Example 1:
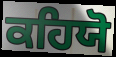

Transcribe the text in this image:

ਕਹਿਯੋ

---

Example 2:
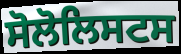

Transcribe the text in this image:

ਸੋਲੋਲਿਸਟਸ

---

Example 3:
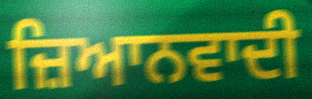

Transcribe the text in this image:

ਜ਼ਿਆਨਵਾਦੀ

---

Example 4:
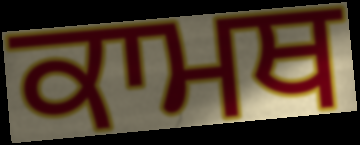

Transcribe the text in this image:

ਕਾਮਥ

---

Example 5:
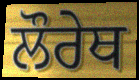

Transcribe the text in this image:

ਲੌਰੇਥ